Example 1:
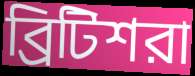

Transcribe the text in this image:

ব্রিটিশরা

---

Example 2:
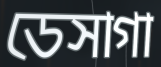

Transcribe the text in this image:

ডেসাগা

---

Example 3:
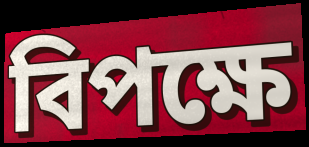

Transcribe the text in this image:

বিপক্ষে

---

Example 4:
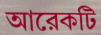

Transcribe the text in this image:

আরেকটি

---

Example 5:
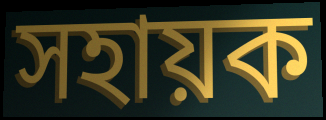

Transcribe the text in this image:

সহায়ক